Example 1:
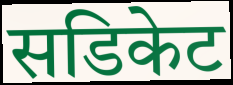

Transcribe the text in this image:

सडिकेट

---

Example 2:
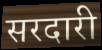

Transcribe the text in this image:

सरदारी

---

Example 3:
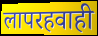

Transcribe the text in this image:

लापरहवाही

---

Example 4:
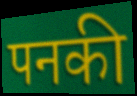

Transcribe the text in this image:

पनकी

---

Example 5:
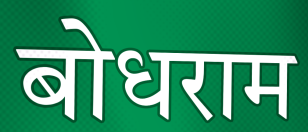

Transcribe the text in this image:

बोधराम